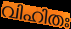
വിഹിതഃ